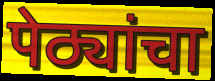
पेठ्यांचा